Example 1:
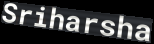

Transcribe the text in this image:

Sriharsha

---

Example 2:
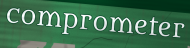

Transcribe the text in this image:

comprometer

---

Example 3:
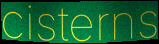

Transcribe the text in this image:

cisterns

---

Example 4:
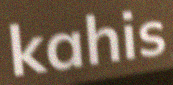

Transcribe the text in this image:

kahis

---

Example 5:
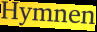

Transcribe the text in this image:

Hymnen